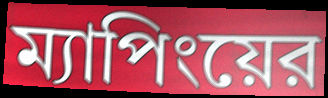
ম্যাপিংয়ের